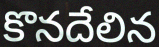
కొనదేలిన